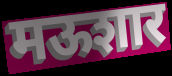
मऊशार